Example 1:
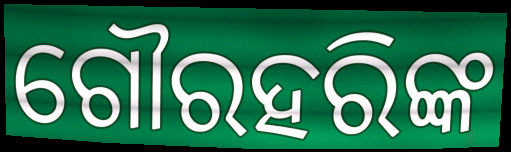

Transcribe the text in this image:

ଗୌରହରିଙ୍କ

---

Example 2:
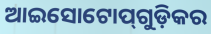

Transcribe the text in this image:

ଆଇସୋଟୋପ୍‌ଗୁଡ଼ିକର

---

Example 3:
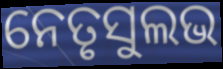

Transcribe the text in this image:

ନେତୃସୁଲଭ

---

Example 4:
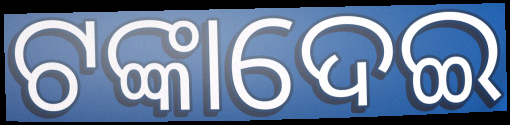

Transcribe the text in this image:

ଟଙ୍କାଦେଇ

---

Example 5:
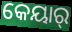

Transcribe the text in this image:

କେୟାର୍